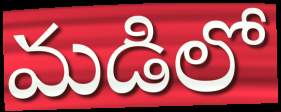
మడిలో